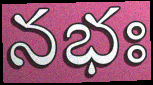
నభః